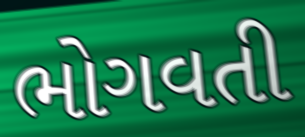
ભોગવતી